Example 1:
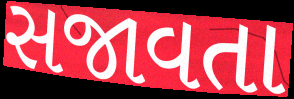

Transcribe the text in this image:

સજાવતા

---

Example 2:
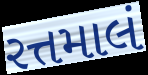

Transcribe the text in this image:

રત્તમાલં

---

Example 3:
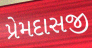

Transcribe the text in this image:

પ્રેમદાસજી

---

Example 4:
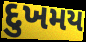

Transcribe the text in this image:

દુખમય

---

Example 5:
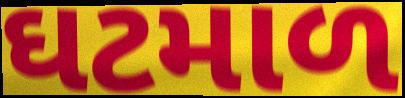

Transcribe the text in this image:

ઘટમાળ